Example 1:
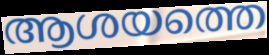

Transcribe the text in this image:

ആശയത്തെ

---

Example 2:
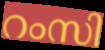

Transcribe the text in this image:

റംസി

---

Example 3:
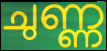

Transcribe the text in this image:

ചുണ്ണ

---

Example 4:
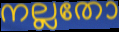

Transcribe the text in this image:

നല്ലതോ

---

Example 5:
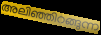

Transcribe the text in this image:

അലിഞ്ഞിറങ്ങുന്ന